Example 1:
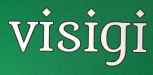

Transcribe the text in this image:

visigi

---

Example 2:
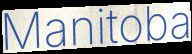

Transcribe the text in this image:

Manitoba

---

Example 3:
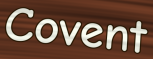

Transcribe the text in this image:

Covent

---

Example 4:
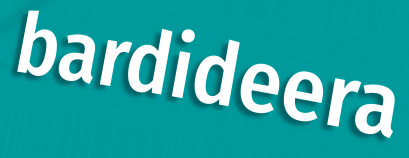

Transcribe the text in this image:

bardideera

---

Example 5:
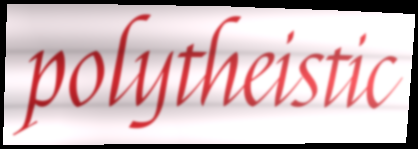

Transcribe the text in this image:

polytheistic